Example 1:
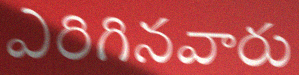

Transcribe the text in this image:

ఎరిగినవారు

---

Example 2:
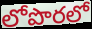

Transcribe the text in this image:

లోపొరలో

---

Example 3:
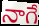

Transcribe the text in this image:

నాగే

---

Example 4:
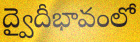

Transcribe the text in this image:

ద్వైదీభావంలో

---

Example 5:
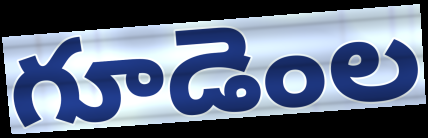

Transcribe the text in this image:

గూడెంల